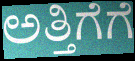
ಅತ್ತಿಗೆಗೆ